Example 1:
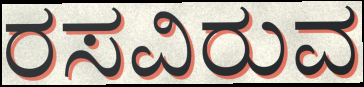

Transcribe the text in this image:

ರಸವಿರುವ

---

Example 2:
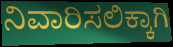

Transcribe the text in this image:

ನಿವಾರಿಸಲಿಕ್ಕಾಗಿ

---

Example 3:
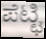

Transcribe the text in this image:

ಪೆಟ್ಟಿ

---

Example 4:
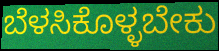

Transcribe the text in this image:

ಬೆಳಸಿಕೊಳ್ಳಬೇಕು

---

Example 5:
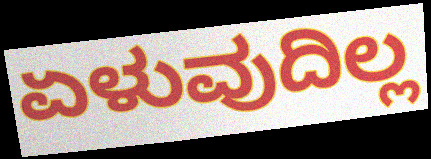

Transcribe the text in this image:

ಏಳುವುದಿಲ್ಲ